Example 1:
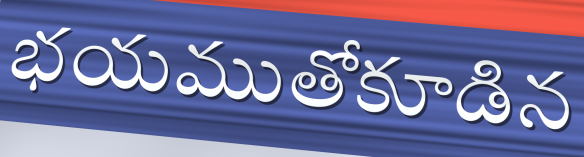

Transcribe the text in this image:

భయముతోకూడిన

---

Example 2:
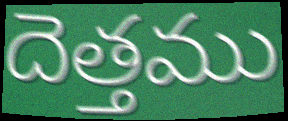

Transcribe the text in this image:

దెత్తము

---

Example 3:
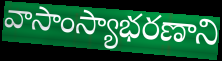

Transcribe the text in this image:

వాసాంస్యాభరణాని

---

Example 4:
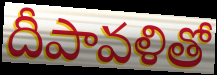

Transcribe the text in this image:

దీపావళితో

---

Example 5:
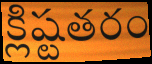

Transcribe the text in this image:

క్లిష్టతరం